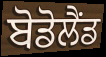
ਬੋਡੋਲੈਂਡ